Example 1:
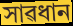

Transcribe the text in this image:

সাৱধান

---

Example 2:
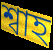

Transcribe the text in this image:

শ্বাহ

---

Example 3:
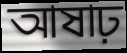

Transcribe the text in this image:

আষাঢ়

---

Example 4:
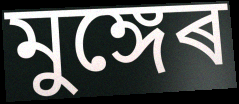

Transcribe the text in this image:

মুঙ্গেৰ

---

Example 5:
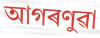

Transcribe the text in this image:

আগৰণুৱা